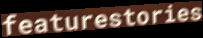
featurestories